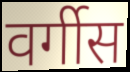
वर्गीस